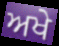
ਅਖੇ